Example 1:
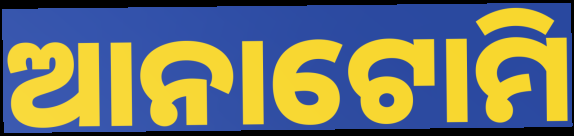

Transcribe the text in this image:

ଆନାଟୋମି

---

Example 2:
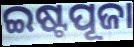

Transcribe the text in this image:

ଇଷ୍ଟପୂଜା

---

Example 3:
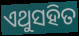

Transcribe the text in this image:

ଏଥୁସହିତ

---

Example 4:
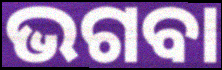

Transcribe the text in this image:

ଭଗବା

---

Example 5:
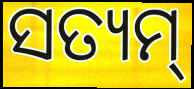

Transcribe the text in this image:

ସତ୍ୟମ୍